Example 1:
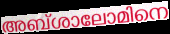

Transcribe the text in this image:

അബ്ശാലോമിനെ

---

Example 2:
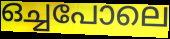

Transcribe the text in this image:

ഒച്ചപോലെ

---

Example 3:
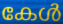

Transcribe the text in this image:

കേൾ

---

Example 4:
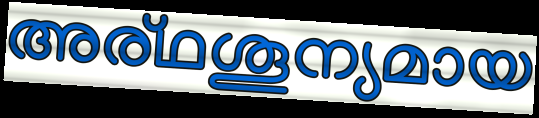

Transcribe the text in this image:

അര്ഥശൂന്യമായ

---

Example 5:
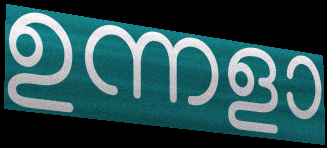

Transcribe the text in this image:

ഉന്നളാ